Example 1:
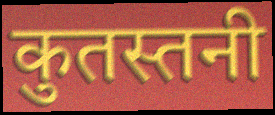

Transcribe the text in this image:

कुतस्तनी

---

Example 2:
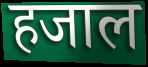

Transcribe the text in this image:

हजाल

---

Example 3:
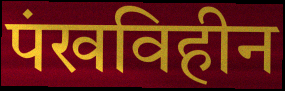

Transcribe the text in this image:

पंखविहीन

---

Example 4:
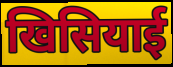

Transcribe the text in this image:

खिसियाई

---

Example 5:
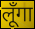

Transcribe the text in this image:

लूँगा